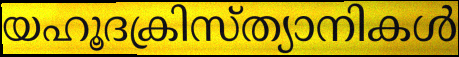
യഹൂദക്രിസ്ത്യാനികൾ